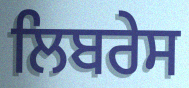
ਲਿਬਰੇਸ